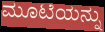
ಮೂಟೆಯನ್ನು